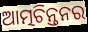
ଆତ୍ମଚିନ୍ତନର